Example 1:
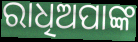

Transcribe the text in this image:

ରାଧିଅପାଙ୍କ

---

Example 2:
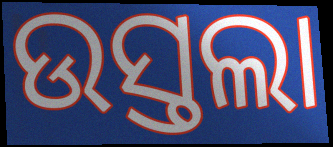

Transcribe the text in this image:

ଉସ୍ତଲା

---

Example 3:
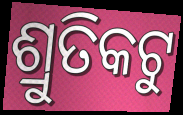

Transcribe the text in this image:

ଶ୍ରୁତିକଟୁ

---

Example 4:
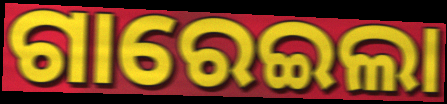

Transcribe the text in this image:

ଗାରେଇଲା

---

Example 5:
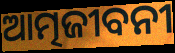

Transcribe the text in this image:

ଆତ୍ମଜୀବନୀ